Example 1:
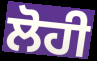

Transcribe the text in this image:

ਲੋਹੀ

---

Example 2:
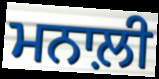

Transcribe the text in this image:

ਮਨਾਲ਼ੀ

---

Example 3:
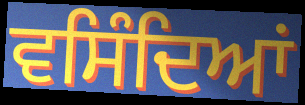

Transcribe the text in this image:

ਵਸਿੰਦਿਆਂ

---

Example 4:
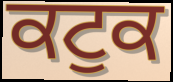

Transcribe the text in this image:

ਕਟੁਕ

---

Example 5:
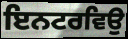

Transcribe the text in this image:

ਇਨਟਰਵਿਉ